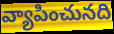
వ్యాపించునది